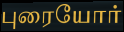
புரையோர்